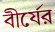
বীর্যের